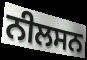
ਨੀਲਸਨ